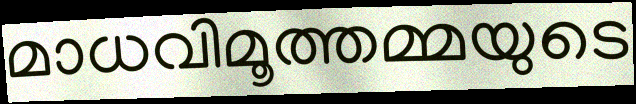
മാധവിമൂത്തമ്മയുടെ